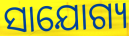
ସାଯୋଗ୍ୟ